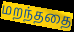
மறந்ததை